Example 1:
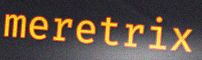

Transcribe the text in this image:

meretrix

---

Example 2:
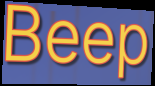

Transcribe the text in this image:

Beep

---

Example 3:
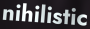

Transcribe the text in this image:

nihilistic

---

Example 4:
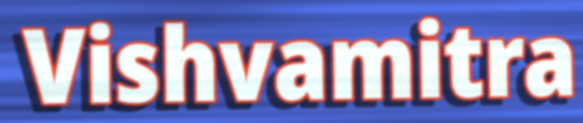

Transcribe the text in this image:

Vishvamitra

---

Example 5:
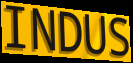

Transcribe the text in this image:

INDUS